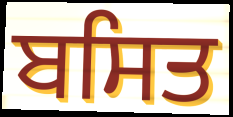
ਬਸਿਤ